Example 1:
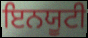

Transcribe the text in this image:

ਇਨਯੂਟੀ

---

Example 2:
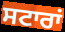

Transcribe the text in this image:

ਸਟਾਰਾਂ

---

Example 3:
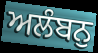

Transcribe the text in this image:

ਅਲੰਬਨੁ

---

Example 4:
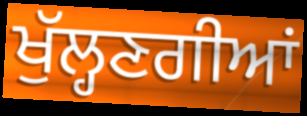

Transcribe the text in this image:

ਖੁੱਲ੍ਹਣਗੀਆਂ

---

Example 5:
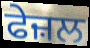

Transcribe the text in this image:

ਫੇਜ਼ਲ